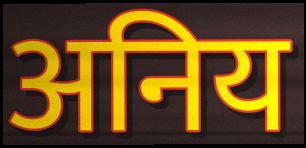
अनिय